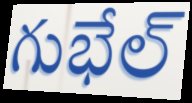
గుభేల్